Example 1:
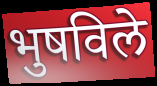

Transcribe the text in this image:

भुषविले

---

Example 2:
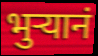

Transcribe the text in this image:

भुऱ्यानं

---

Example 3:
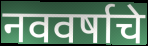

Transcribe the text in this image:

नववर्षाचे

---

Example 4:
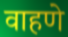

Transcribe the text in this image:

वाहणे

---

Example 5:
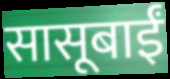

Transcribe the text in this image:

सासूबाईं